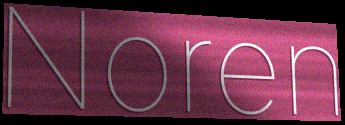
Noren